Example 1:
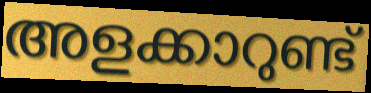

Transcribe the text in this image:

അളക്കാറുണ്ട്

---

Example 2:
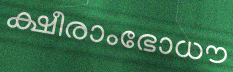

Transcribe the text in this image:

ക്ഷീരാംഭോധൗ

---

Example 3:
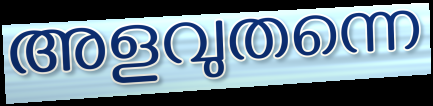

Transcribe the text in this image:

അളവുതന്നെ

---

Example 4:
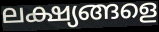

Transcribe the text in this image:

ലക്ഷ്യങ്ങളെ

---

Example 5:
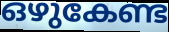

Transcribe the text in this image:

ഒഴുകേണ്ട